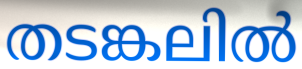
തടങ്കലിൽ